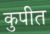
कुपीत